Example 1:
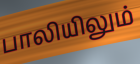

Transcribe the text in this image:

பாலியிலும்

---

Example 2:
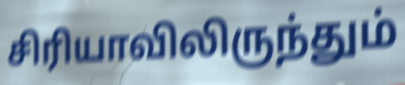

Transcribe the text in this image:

சிரியாவிலிருந்தும்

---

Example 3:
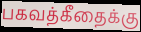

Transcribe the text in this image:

பகவத்கீதைக்கு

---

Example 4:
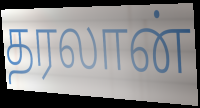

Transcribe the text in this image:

தரலான்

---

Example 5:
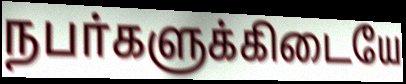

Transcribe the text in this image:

நபர்களுக்கிடையே